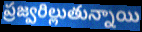
ప్రజ్వరిల్లుతున్నాయి